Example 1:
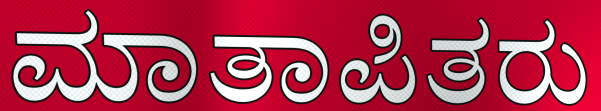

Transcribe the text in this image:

ಮಾತಾಪಿತರು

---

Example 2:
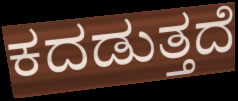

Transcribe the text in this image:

ಕದಡುತ್ತದೆ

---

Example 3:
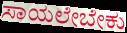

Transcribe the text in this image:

ಸಾಯಲೇಬೇಕು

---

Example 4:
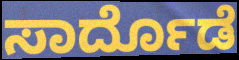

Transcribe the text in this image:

ಸಾರ್ದೊಡೆ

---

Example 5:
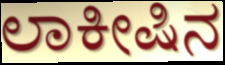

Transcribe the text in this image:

ಲಾಕೀಷಿನ